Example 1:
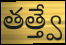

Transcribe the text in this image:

తత్త్వే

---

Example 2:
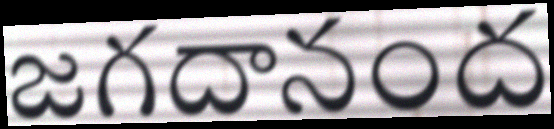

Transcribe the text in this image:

జగదానంద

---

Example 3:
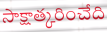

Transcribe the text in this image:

సాక్షాత్కరించేది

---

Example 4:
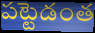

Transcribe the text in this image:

పట్టెడంత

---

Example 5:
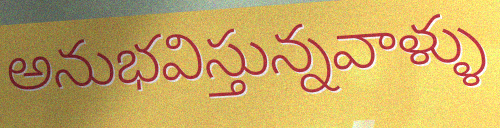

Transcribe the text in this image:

అనుభవిస్తున్నవాళ్ళు